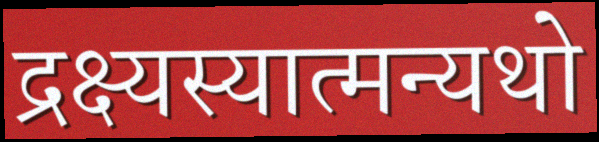
द्रक्ष्यस्यात्मन्यथो